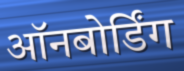
ऑनबोर्डिंग